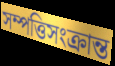
সম্পত্তিসংক্রান্ত